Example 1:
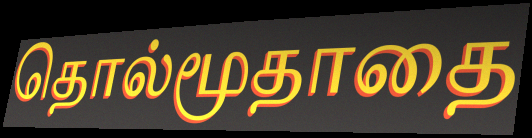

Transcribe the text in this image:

தொல்மூதாதை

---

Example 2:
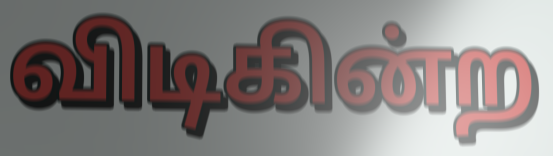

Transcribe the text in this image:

விடிகின்ற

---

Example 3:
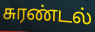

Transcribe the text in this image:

சுரண்டல்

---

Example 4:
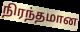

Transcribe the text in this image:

நிரந்தமான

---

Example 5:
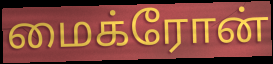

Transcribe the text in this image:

மைக்ரோன்